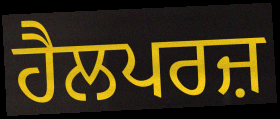
ਹੈਲਪਰਜ਼